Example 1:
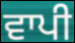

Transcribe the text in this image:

ਵਾਪੀ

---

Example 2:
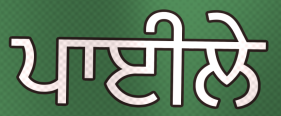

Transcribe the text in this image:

ਪਾਈਲੇ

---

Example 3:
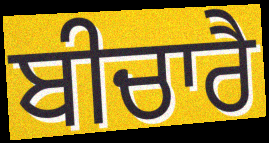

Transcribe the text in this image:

ਬੀਚਾਰੈ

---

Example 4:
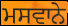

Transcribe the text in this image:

ਮਸਵਾਨੇ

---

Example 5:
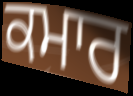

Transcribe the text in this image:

ਕਮਾਰ